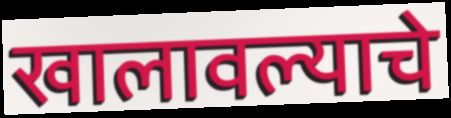
खालावल्याचे